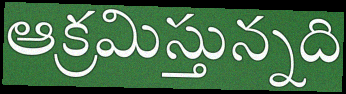
ఆక్రమిస్తున్నది